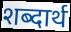
शब्दार्थ